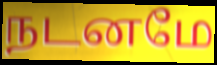
நடனமே